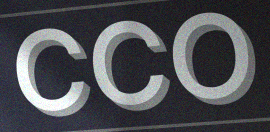
CCO